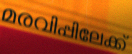
മരവിപ്പിലേക്ക്